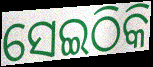
ସେଇଠିକି